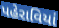
પહેરાવિયાં